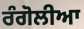
ਰੰਗੋਲੀਆ